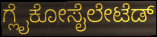
ಗ್ಲೈಕೋಸೈಲೇಟೆಡ್